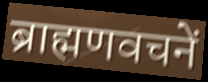
ब्राह्मणवचनें